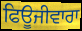
ਫਿਊਜੀਵਾਰਾ